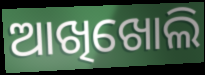
ଆଖିଖୋଲି